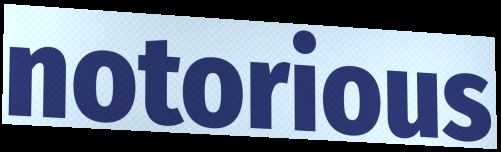
notorious